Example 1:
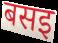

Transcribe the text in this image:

बसइ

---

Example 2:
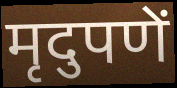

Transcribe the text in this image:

मृदुपणें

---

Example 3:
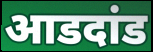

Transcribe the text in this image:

आडदांड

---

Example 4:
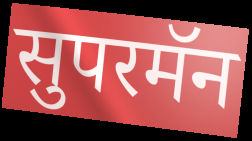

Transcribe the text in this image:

सुपरमॅन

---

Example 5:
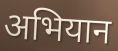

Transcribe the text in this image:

अभियान